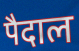
पैदाल